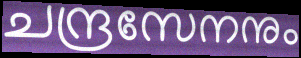
ചന്ദ്രസേനനും